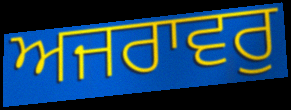
ਅਜਰਾਵਰੁ